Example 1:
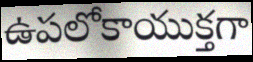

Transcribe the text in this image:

ఉపలోకాయుక్తగా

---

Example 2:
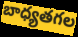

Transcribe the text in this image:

బాధ్యతగల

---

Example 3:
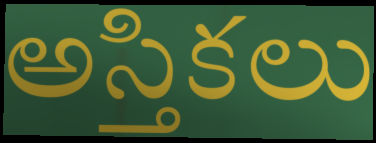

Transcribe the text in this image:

అస్తికలు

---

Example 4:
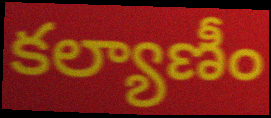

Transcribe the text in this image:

కల్యాణీం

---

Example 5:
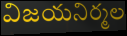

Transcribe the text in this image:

విజయనిర్మల